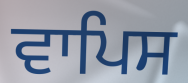
ਵਾਪਿਸ